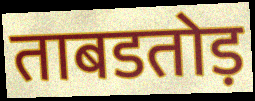
ताबडतोड़